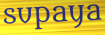
supaya